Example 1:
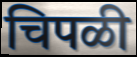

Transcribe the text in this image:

चिपळी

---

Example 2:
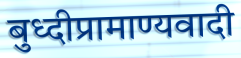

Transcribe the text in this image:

बुध्दीप्रामाण्यवादी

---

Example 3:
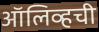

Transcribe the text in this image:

ऑलिव्हची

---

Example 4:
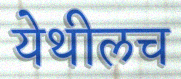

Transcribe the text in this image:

येथीलच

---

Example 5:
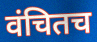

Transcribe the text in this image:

वंचितच